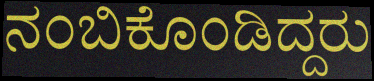
ನಂಬಿಕೊಂಡಿದ್ದರು